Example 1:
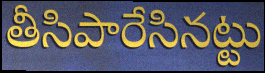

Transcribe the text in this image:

తీసిపారేసినట్టు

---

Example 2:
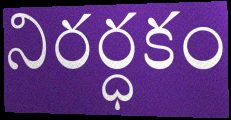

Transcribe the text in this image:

నిరర్ధకం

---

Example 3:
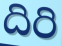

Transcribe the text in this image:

దిరి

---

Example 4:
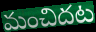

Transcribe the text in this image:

మంచిదట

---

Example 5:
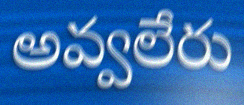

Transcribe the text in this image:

అవ్వలేరు